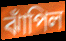
ঝাঁপিল